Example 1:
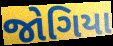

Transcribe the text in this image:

જોગિયા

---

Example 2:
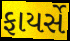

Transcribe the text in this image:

ફાયર્સે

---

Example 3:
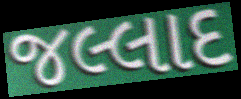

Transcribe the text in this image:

જલ્લાદ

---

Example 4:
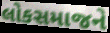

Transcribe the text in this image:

લોકસમાજને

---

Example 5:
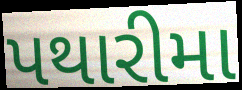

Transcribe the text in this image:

પથારીમા